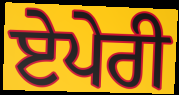
ਏਪੇਰੀ